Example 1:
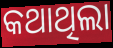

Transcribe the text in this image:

କଥାଥିଲା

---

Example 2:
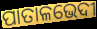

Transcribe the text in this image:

ପାତାଳଭେଦୀ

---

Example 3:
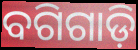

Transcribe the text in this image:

ବଗିଗାଡ଼ି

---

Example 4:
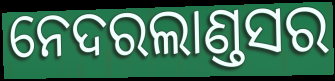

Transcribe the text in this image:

ନେଦରଲାଣ୍ଡସର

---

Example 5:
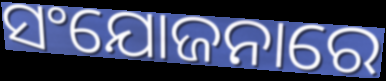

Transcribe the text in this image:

ସଂଯୋଜନାରେ